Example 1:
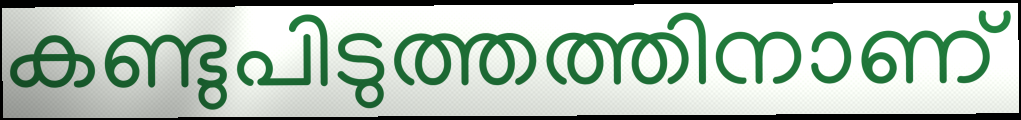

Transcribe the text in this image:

കണ്ടുപിടുത്തത്തിനാണ്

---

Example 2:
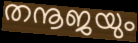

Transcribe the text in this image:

തനൂജയും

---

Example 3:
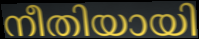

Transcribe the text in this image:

നീതിയായി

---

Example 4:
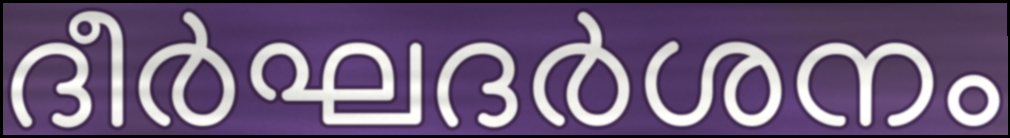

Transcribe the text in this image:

ദീർഘദർശനം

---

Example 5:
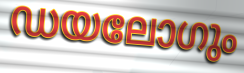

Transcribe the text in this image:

ഡയലോഗും